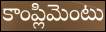
కాంప్లిమెంటు